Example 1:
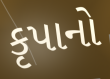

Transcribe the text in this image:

કૃપાનો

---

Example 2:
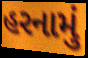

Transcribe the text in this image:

હરનામું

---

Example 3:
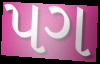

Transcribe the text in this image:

પગ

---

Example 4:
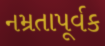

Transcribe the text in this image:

નમ્રતાપૂર્વક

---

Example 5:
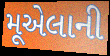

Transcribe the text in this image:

મૂએલાની